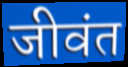
जीवंत